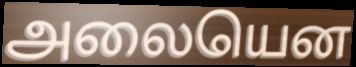
அலையென